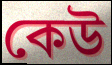
কেউ